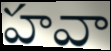
హవా